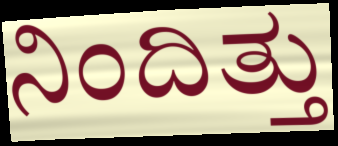
ನಿಂದಿತ್ತು